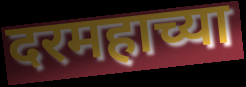
दरमहाच्या